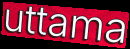
uttama